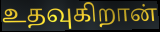
உதவுகிறான்